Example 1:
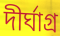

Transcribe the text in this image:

দীর্ঘাগ্র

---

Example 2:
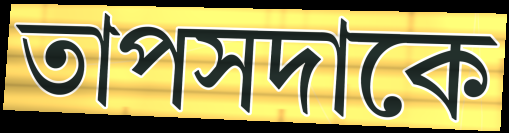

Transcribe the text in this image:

তাপসদাকে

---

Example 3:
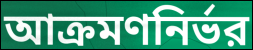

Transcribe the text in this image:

আক্রমণনির্ভর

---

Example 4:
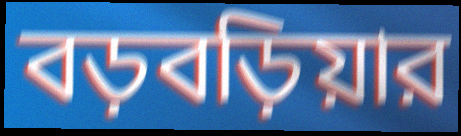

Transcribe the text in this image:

বড়বড়িয়ার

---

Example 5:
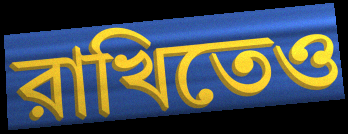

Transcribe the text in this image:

রাখিতেও